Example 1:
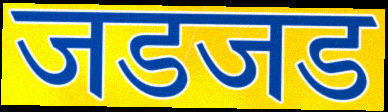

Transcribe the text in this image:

जडजड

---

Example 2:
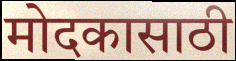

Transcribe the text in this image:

मोदकासाठी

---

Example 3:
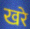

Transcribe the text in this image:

खरे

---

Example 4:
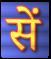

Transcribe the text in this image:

सें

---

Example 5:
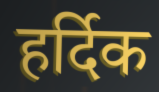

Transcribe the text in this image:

हर्दिक